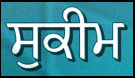
ਸੁਕੀਮ